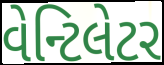
વેન્ટિલેટર